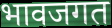
भावजगत